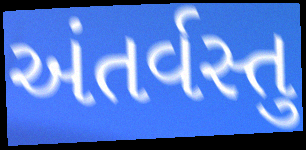
અંતર્વસ્તુ